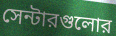
সেন্টারগুলোর